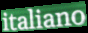
italiano